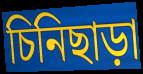
চিনিছাড়া